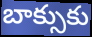
బాక్సుకు